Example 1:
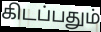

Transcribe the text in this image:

கிடப்பதும்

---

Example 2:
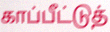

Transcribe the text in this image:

காப்பீட்டுத்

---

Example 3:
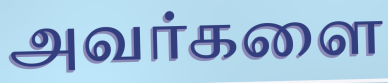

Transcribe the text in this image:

அவர்களை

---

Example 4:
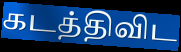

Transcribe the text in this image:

கடத்திவிட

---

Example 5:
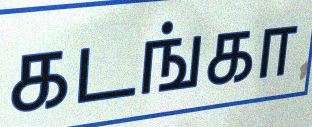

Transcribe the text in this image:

கடங்கா